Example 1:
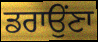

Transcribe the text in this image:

ਡਰਾਉਂਣਾ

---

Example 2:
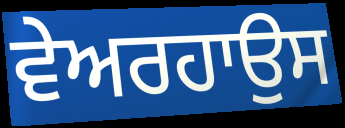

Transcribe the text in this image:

ਵੇਅਰਹਾਉਸ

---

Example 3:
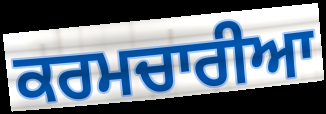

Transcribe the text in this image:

ਕਰਮਚਾਰੀਆ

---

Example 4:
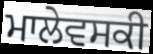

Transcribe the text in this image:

ਮਾਲੇਵਸਕੀ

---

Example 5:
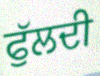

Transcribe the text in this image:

ਫੁੱਲਦੀ